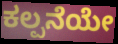
ಕಲ್ಪನೆಯೇ